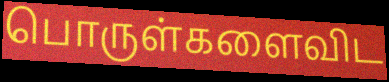
பொருள்களைவிட